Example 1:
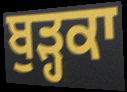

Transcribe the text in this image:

ਬੁੜ੍ਹਕਾ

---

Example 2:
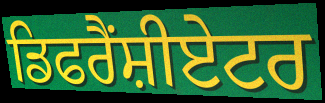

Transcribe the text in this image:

ਡਿਫਰੈਂਸ਼ੀਏਟਰ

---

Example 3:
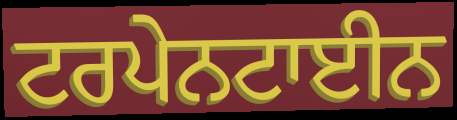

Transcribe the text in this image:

ਟਰਪੇਨਟਾਈਨ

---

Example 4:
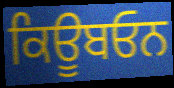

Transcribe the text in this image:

ਕਿਊਬਓਨ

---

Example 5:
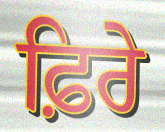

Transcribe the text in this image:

ਫ਼ਿਰੇ